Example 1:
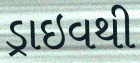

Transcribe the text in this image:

ડ્રાઇવથી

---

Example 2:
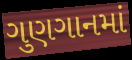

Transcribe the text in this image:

ગુણગાનમાં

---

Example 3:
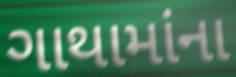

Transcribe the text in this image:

ગાથામાંના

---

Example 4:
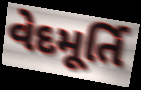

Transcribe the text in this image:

વેદમૂર્તિ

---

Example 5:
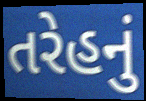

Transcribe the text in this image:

તરેહનું